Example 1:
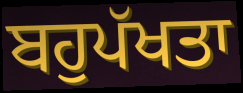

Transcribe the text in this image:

ਬਹੁਪੱਖਤਾ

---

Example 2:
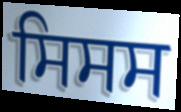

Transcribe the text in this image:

ਸਿਸਸ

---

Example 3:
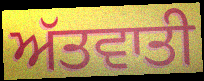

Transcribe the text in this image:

ਅੱਤਵਾਤੀ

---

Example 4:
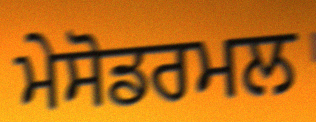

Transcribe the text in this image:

ਮੇਸੋਡਰਮਲ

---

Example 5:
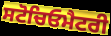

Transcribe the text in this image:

ਸਟੋਚਿਓਮੈਟਰੀ